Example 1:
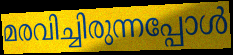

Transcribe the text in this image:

മരവിച്ചിരുന്നപ്പോൾ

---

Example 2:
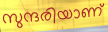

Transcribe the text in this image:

സുന്ദരിയാണ്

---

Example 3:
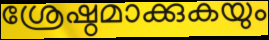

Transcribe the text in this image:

ശ്രേഷ്ഠമാക്കുകയും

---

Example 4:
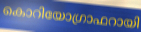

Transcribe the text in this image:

കൊറിയോഗ്രാഫറായി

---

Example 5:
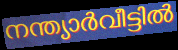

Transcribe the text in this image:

നന്ത്യാർവീട്ടിൽ